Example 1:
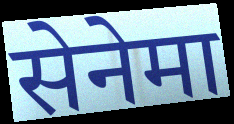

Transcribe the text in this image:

सेनेमा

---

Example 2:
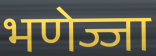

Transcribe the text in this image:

भणेज्जा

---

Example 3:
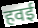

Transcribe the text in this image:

हवई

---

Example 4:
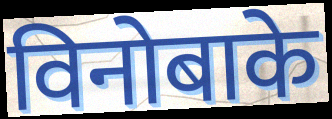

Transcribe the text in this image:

विनोबाके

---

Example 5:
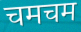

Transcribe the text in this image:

चमचम